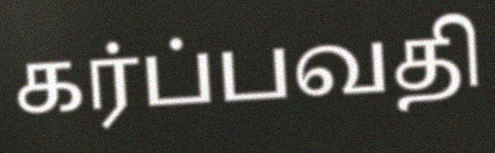
கர்ப்பவதி